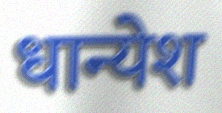
धान्येश